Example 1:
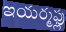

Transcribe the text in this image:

ఇయర్మఫ్లు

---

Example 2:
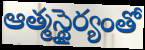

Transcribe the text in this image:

ఆత్మస్థైర్యంతో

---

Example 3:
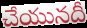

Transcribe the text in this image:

చేయునదీ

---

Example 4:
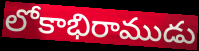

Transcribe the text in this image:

లోకాభిరాముడు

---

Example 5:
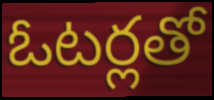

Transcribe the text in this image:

ఓటర్లతో